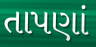
તાપણાં